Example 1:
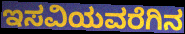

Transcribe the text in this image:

ಇಸವಿಯವರೆಗಿನ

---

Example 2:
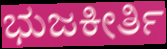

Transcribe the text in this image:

ಭುಜಕೀರ್ತಿ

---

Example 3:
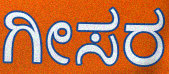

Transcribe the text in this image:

ಗೀಸರ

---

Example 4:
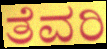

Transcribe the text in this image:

ತೆವರಿ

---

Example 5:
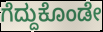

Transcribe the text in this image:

ಗೆದ್ದುಕೊಂಡೇ